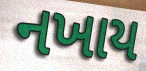
નખાય